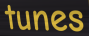
tunes